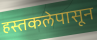
हस्तकलेपासून